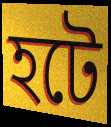
হটে